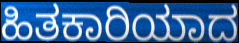
ಹಿತಕಾರಿಯಾದ